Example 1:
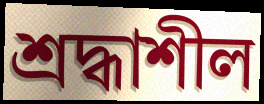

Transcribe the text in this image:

শ্ৰদ্ধাশীল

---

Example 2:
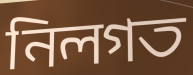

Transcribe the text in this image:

নিলগত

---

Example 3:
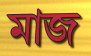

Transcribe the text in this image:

মাজ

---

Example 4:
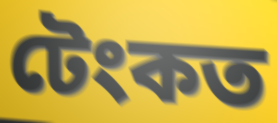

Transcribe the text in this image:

টেংকত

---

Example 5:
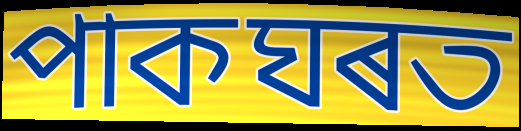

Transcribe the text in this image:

পাকঘৰত